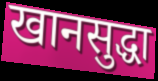
खानसुद्धा